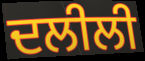
ਦਲੀਲੀ